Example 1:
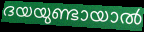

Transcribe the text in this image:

ദയയുണ്ടായാൽ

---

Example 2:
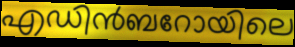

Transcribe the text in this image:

എഡിൻബറോയിലെ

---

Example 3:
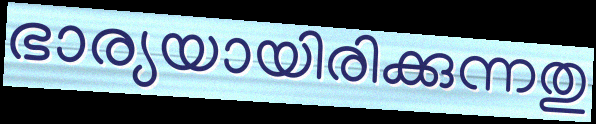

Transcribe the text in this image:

ഭാര്യയായിരിക്കുന്നതു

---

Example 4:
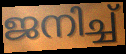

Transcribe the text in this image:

ജനിച്ച്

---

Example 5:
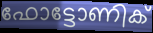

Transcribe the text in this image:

ഫോട്ടോണിക്